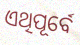
ଏଥିପୂର୍ବେ